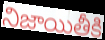
నిజాయితీకి